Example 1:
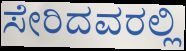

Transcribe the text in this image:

ಸೇರಿದವರಲ್ಲಿ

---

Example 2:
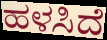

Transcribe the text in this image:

ಹಳಸಿದೆ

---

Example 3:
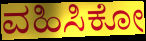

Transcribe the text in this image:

ವಹಿಸಿಕೋ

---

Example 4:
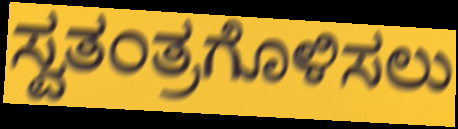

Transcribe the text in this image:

ಸ್ವತಂತ್ರಗೊಳಿಸಲು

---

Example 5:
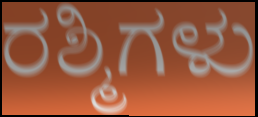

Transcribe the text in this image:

ರಶ್ಮಿಗಳು